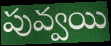
పువ్వయి